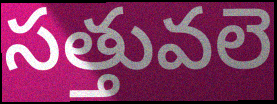
సత్తువలె